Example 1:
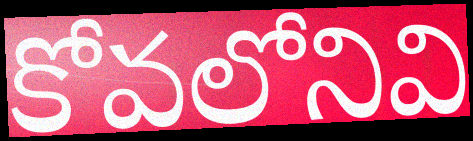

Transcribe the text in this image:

కోవలోనివి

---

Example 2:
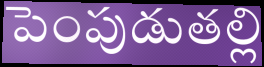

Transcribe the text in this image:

పెంపుడుతల్లి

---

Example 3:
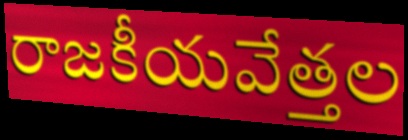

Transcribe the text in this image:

రాజకీయవేత్తల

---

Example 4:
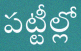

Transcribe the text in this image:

పట్టీల్లో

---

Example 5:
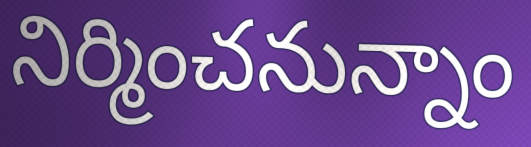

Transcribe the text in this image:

నిర్మించనున్నాం